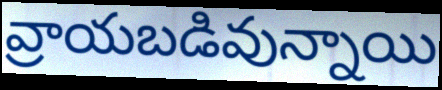
వ్రాయబడివున్నాయి